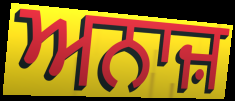
ਅਨਾਜ਼